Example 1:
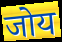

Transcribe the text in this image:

जोय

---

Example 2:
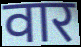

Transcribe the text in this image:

वार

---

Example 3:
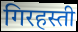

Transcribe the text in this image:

गिरहस्ती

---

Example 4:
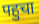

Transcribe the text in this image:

पहुचा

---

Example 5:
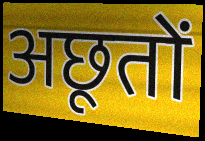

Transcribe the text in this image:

अछूतों